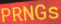
PRNGs